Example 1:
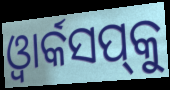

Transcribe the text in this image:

ଓ୍ୱାର୍କସପ୍‌କୁ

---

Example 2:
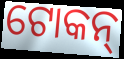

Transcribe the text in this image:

ଟୋକନ୍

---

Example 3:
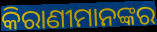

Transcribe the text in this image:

କିରାଣୀମାନଙ୍କର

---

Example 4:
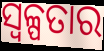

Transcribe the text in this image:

ସ୍ଵଳ୍ପତାର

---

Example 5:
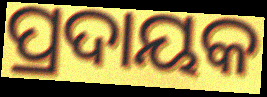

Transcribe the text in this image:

ପ୍ରଦାୟକ